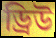
ড্রিউ